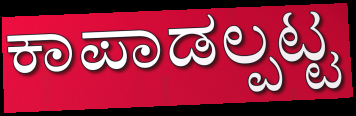
ಕಾಪಾಡಲ್ಪಟ್ಟ